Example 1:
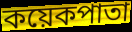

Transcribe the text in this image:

কয়েকপাতা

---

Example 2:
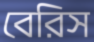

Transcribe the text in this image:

বেরিস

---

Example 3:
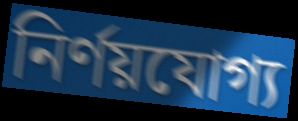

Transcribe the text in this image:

নির্ণয়যোগ্য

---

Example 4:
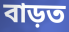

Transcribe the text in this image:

বাড়ত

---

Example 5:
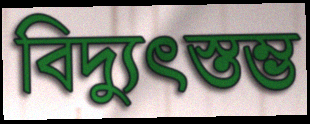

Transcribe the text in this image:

বিদ্যুৎস্তম্ভ